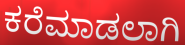
ಕರೆಮಾಡಲಾಗಿ